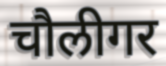
चौलीगर